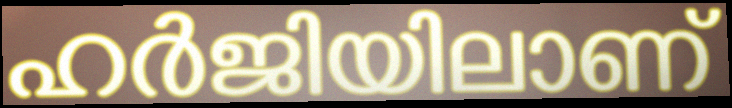
ഹർജിയിലാണ്